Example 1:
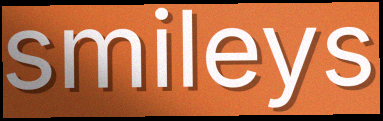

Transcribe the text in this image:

smileys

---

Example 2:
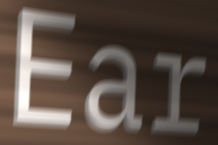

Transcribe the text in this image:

Ear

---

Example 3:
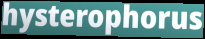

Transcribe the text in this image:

hysterophorus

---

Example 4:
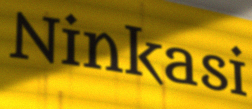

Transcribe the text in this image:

Ninkasi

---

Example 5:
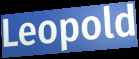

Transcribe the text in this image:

Leopold